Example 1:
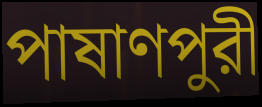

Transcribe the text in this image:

পাষাণপুরী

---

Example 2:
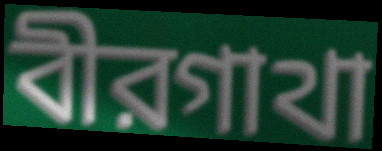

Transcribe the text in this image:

বীরগাথা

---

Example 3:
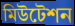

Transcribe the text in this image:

মিউটেশন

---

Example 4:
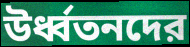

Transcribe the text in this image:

উর্ধ্বতনদের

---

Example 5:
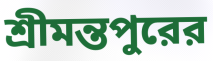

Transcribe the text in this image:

শ্রীমন্তপুরের